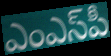
ఎంఎస్‌పీ